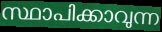
സ്ഥാപിക്കാവുന്ന